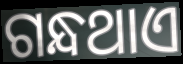
ଗନ୍ଧଥାଏ